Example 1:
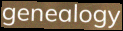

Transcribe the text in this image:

genealogy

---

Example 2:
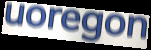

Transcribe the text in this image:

uoregon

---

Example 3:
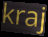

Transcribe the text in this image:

kraj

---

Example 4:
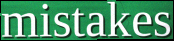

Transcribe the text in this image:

mistakes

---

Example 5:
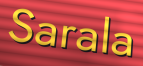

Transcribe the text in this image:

Sarala